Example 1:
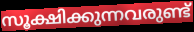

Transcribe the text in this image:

സൂക്ഷിക്കുന്നവരുണ്ട്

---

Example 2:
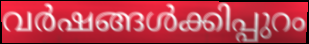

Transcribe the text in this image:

വർഷങ്ങൾക്കിപ്പുറം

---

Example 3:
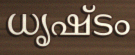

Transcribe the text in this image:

ധൃഷ്ടം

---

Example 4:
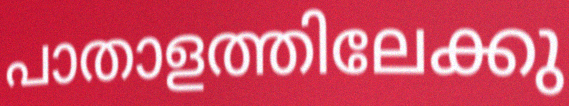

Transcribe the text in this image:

പാതാളത്തിലേക്കു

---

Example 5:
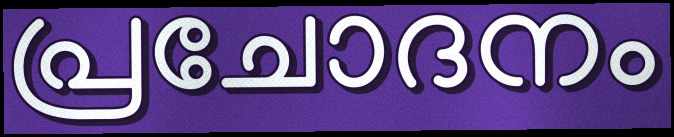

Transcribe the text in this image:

പ്രചോദനം